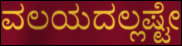
ವಲಯದಲ್ಲಷ್ಟೇ